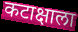
कटाक्षाला